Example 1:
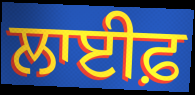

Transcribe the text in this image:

ਲਾਈਫ਼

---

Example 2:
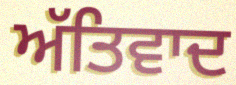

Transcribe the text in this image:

ਅੱਤਿਵਾਦ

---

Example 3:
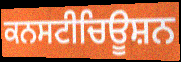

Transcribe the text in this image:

ਕਨਸਟੀਚਿਊਸ਼ਨ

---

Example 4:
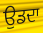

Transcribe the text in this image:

ਉਡਦਾ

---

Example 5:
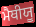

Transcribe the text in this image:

ਮੈਥੀਯੂ